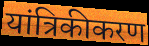
यांत्रिकीकरण